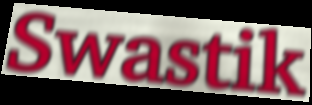
Swastik